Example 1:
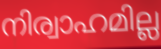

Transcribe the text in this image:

നിര്വാഹമില്ല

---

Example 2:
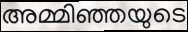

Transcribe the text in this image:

അമ്മിഞ്ഞയുടെ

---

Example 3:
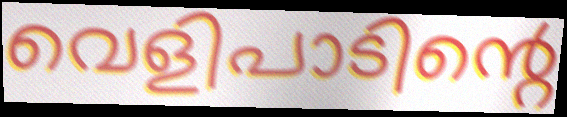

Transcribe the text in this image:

വെളിപാടിന്റെ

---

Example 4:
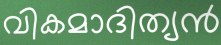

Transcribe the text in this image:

വികമാദിത്യൻ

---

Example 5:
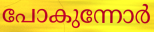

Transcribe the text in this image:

പോകുന്നോർ